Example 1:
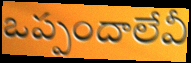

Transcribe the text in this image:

ఒప్పందాలేవీ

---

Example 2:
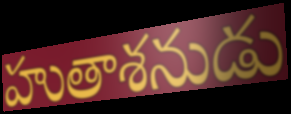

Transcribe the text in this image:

హుతాశనుడు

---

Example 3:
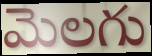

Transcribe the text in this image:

మెలగు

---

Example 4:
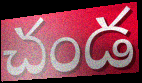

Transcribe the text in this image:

చండ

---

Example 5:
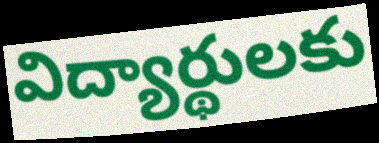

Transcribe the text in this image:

విద్యార్థులకు